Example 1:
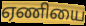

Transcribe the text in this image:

ஏணியை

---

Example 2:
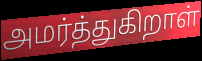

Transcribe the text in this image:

அமர்த்துகிறாள்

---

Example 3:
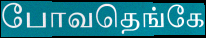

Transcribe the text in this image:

போவதெங்கே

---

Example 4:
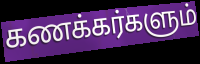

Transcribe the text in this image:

கணக்கர்களும்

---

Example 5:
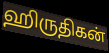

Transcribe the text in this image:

ஹிருதிகன்